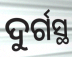
ଦୁର୍ଗସ୍ଥ